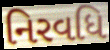
નિરવધિ